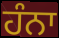
ਹੰਨਾ